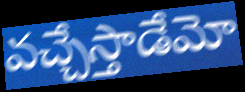
వచ్చేస్తాడేమో